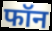
फॉन